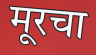
मूरचा